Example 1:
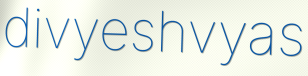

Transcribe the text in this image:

divyeshvyas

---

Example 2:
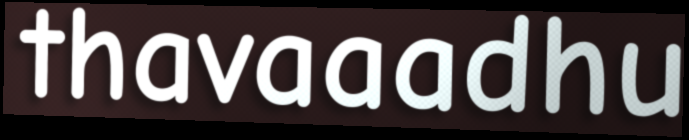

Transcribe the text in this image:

thavaaadhu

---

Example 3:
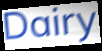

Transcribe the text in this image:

Dairy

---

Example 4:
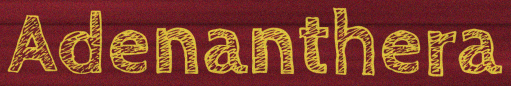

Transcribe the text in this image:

Adenanthera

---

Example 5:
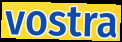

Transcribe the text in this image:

vostra